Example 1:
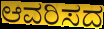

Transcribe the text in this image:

ಆವರಿಸದ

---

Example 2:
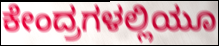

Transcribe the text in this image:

ಕೇಂದ್ರಗಳಲ್ಲಿಯೂ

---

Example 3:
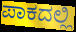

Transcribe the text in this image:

ಪಾಕದಲ್ಲಿ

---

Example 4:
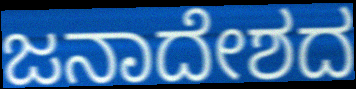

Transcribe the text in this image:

ಜನಾದೇಶದ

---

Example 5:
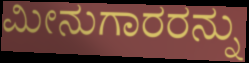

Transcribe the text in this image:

ಮೀನುಗಾರರನ್ನು